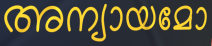
അന്യായമോ